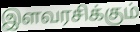
இளவரசிக்கும்